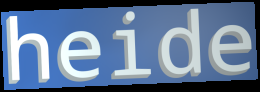
heide